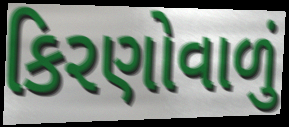
કિરણોવાળું